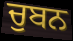
ਚੁਬਨ